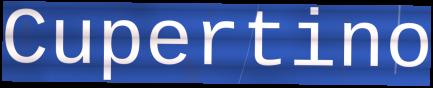
Cupertino